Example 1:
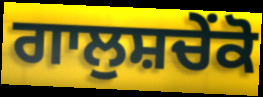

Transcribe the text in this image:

ਗਾਲੁਸ਼ਚੇਂਕੋ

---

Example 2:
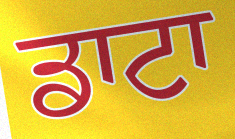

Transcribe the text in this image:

ਡਾਟਾ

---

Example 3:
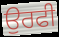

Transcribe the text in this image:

ਉਰਫੀ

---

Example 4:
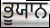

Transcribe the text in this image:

ਭੂਯਾਨ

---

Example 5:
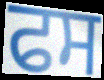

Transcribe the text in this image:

ਫਸ